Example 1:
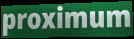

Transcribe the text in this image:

proximum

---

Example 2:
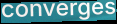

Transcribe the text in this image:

converges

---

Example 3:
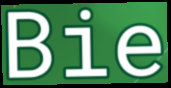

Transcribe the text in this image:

Bie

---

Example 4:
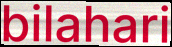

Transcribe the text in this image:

bilahari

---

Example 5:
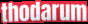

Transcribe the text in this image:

thodarum